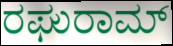
ರಘುರಾಮ್